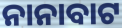
ନାନାବାଟ